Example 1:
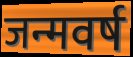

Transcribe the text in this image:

जन्मवर्ष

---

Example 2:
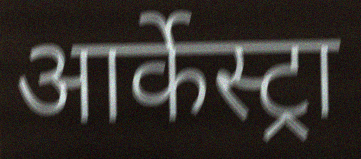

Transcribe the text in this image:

आर्केस्ट्रा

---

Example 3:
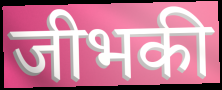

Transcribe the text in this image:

जीभकी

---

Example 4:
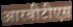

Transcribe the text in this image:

आरबीटीएस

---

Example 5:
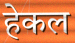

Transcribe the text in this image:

हेकल